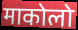
माकोलो